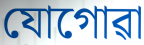
যোগোৱা